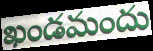
ఖండమందు